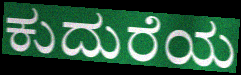
ಕುದುರೆಯ